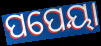
ପପେୟା